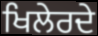
ਖਿਲੇਰਦੇ